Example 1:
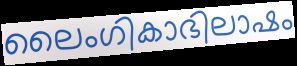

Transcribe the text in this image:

ലൈംഗികാഭിലാഷം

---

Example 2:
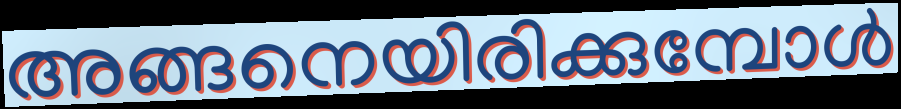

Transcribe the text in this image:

അങ്ങനെയിരിക്കുമ്പോൾ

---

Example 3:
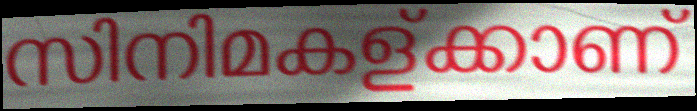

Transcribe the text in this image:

സിനിമകള്ക്കാണ്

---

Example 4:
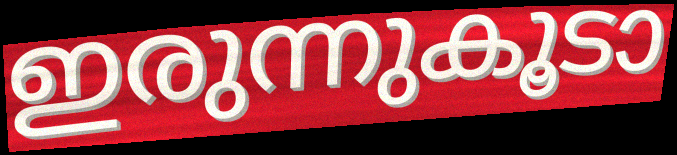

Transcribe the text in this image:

ഇരുന്നുകൂടാ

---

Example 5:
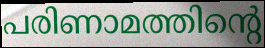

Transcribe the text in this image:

പരിണാമത്തിന്റെ